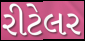
રીટેલર